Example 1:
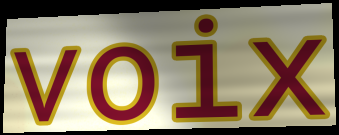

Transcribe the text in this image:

voix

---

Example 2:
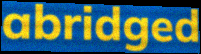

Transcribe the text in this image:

abridged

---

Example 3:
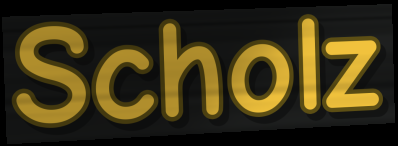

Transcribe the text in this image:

Scholz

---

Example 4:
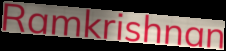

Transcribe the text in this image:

Ramkrishnan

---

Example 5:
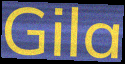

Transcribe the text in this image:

Gila